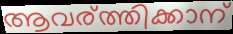
ആവര്ത്തിക്കാന്